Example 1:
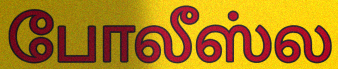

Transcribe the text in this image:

போலீஸ்ல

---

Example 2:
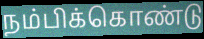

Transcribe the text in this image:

நம்பிக்கொண்டு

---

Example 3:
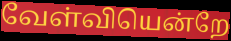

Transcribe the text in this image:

வேள்வியென்றே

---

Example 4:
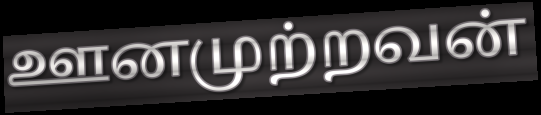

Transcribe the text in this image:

ஊனமுற்றவன்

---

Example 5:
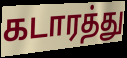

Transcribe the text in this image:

கடாரத்து